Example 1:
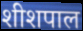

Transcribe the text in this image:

शीशपाल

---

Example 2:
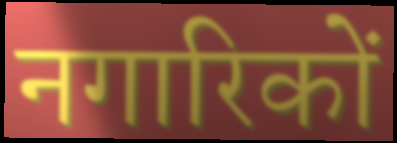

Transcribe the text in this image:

नगारिकों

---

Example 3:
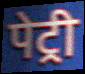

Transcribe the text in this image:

पेट्री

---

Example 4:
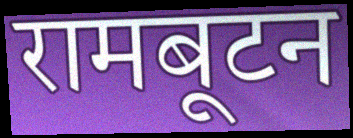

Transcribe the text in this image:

रामबूटन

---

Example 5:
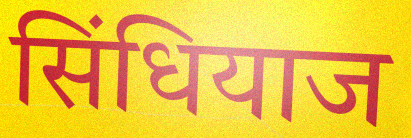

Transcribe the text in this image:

सिंधियाज